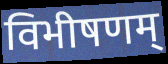
विभीषणम्